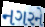
નગરને